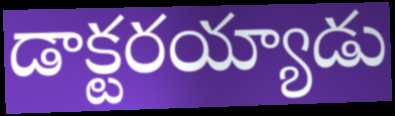
డాక్టరయ్యాడు